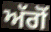
ਅੱਗੋਂ